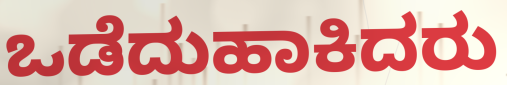
ಒಡೆದುಹಾಕಿದರು